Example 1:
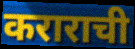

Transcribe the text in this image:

कराराची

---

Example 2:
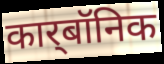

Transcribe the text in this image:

कार्‌बॉनिक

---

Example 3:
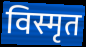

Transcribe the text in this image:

विस्मृत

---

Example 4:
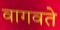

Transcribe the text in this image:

वागवते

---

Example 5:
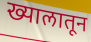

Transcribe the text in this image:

ख्यालातून